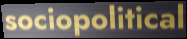
sociopolitical